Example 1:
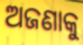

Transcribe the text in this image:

ଅଜଣାକୁ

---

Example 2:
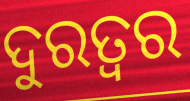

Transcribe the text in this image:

ଦୁରତ୍ଵର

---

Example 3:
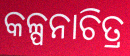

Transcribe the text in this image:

କଳ୍ପନାଚିତ୍ର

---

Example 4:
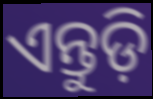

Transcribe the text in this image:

ଏନ୍ତୁଡ଼ି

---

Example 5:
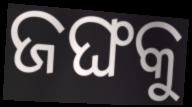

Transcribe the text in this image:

ଜଙ୍ଘକୁ